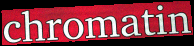
chromatin